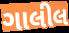
ગાલીલ